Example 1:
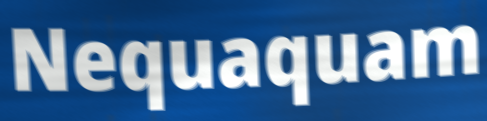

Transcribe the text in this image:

Nequaquam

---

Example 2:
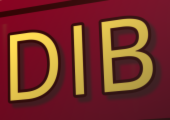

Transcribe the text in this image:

DIB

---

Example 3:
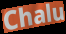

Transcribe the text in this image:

Chalu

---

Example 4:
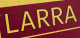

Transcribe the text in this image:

LARRA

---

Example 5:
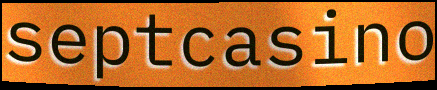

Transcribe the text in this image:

septcasino